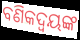
ବଣିକଦ୍ଵୟଙ୍କ